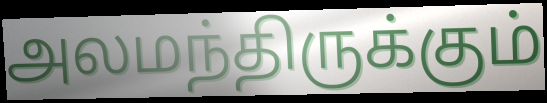
அலமந்திருக்கும்